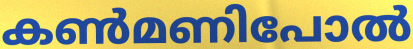
കൺമണിപോൽ